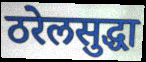
ठरेलसुद्धा